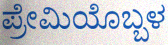
ಪ್ರೇಮಿಯೊಬ್ಬಳ